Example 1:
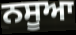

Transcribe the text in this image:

ਨਸੂਆ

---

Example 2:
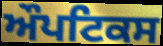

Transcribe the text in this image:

ਔਪਟਿਕਸ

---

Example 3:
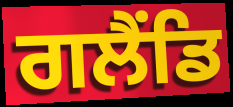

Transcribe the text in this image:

ਗਲੈਂਡਿ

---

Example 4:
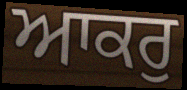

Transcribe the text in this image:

ਆਕਰੁ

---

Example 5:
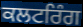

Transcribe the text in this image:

ਕਲਟਰਿੰਗ